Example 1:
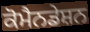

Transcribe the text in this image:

ਕੋਮੈਨਡੇਸ਼ਨ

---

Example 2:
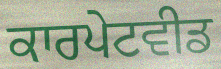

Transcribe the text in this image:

ਕਾਰਪੇਟਵੀਡ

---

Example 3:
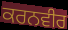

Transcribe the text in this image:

ਕਰਨਵੀਰ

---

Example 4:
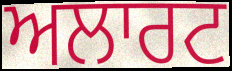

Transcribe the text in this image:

ਅਲਾਰਟ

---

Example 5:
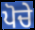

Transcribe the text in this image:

ਪੋਚੇ